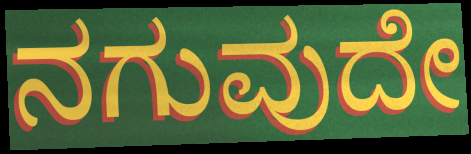
ನಗುವುದೇ